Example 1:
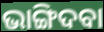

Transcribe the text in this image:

ଭାଙ୍ଗିଦବା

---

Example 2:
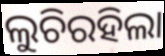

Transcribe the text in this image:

ଲୁଚିରହିଲା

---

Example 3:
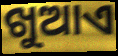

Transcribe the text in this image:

ଖୁଆଏ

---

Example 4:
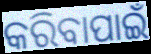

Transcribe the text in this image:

କରିବାପାଇଁ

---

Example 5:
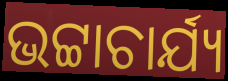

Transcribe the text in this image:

ଭଟ୍ଟାଚାର୍ଯ୍ୟ